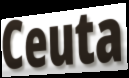
Ceuta